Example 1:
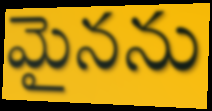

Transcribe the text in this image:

మైనను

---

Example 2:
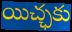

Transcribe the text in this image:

యిచ్ఛకు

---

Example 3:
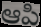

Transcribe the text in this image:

ఆపి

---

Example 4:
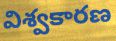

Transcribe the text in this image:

విశ్వకారణ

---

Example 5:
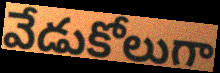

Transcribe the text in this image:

వేడుకోలుగా